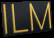
ILM